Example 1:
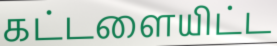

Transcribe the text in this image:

கட்டளையிட்ட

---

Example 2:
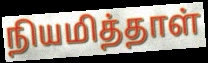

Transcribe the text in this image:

நியமித்தாள்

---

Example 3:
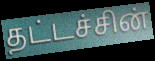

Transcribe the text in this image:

தட்டச்சின்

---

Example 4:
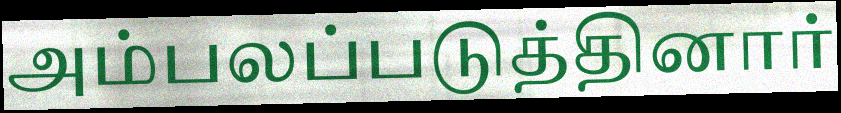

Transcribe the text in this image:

அம்பலப்படுத்தினார்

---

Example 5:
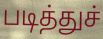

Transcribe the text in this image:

படித்துச்